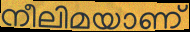
നീലിമയാണ്